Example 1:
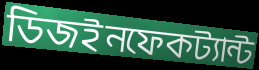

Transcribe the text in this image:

ডিজইনফেকট্যান্ট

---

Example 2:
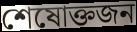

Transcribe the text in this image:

শেষোক্তজন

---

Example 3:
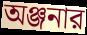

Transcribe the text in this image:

অঞ্জনার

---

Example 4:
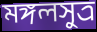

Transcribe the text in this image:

মঙ্গলসুত্র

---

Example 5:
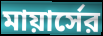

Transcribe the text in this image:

মায়ার্সের